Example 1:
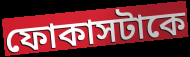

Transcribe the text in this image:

ফোকাসটাকে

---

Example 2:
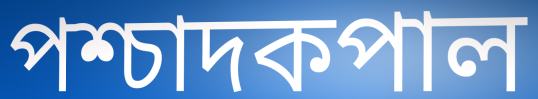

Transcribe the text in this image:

পশ্চাদকপাল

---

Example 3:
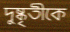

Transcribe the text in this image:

দুষ্কৃতীকে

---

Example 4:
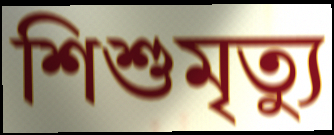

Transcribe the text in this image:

শিশুমৃত্যু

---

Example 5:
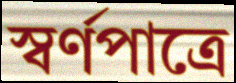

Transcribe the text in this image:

স্বর্ণপাত্রে